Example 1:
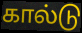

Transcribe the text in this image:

கால்டு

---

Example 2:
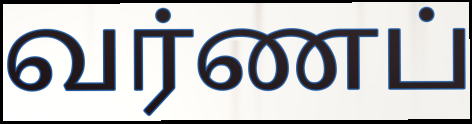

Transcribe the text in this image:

வர்ணப்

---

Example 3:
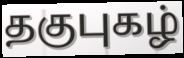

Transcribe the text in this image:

தகுபுகழ்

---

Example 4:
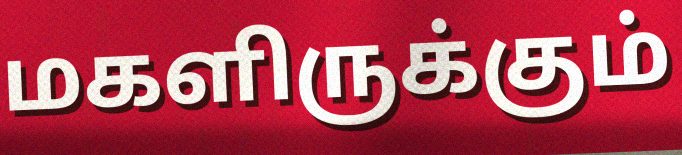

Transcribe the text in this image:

மகளிருக்கும்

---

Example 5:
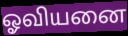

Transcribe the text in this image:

ஓவியனை